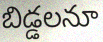
బిడ్డలనూ